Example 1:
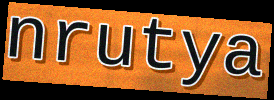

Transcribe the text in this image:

nrutya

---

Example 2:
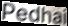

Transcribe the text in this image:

Pedhai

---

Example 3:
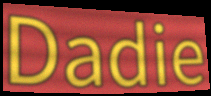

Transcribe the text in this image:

Dadie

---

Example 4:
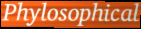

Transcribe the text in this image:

Phylosophical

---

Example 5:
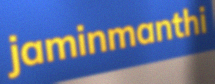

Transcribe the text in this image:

jaminmanthi